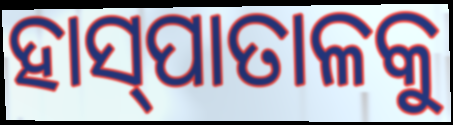
ହାସ୍‍ପାତାଳକୁ